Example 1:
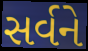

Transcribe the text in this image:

સર્વને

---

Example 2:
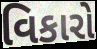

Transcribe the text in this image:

વિકારો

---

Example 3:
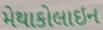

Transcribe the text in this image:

મેથાકોલાઇન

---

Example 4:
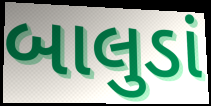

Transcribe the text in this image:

બાલુડાં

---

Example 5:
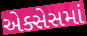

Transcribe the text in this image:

એક્સેસમાં